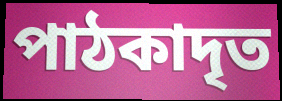
পাঠকাদৃত